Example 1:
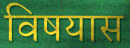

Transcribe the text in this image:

विषयास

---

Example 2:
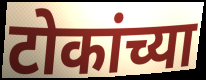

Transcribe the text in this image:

टोकांच्या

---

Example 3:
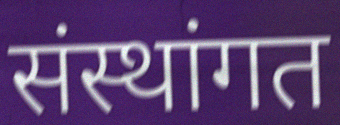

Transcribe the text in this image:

संस्थांगत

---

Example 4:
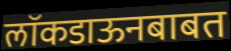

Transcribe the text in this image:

लॉकडाऊनबाबत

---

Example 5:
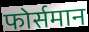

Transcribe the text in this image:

फोर्समान